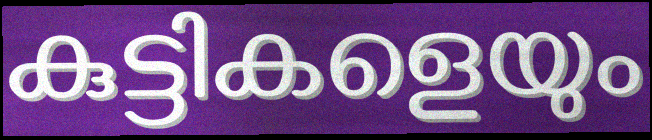
കുട്ടികളെയും